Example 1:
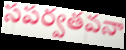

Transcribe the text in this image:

సపర్వతవనా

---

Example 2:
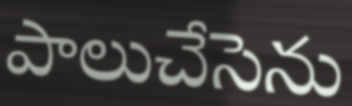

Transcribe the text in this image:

పాలుచేసెను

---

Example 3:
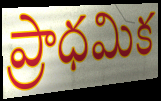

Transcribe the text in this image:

ప్రాధమిక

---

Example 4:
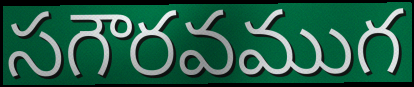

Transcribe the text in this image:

సగౌరవముగ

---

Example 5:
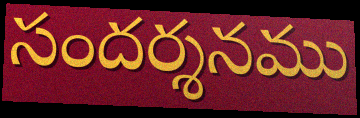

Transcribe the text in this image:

సందర్శనము